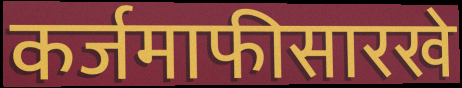
कर्जमाफीसारखे